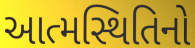
આત્મસ્થિતિનો